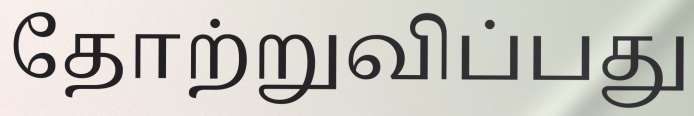
தோற்றுவிப்பது